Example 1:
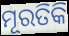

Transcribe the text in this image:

ମୂରତିକି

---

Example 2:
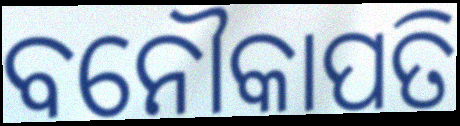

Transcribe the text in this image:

ବନୌକାପତି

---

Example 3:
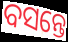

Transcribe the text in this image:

ବସନ୍ତେ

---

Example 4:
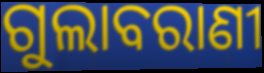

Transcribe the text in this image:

ଗୁଲାବରାଣୀ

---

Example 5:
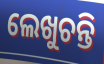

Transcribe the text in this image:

ଲେଖୁଚନ୍ତି